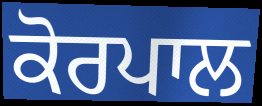
ਕੋਰਪਾਲ